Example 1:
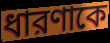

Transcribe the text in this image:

ধারণাকে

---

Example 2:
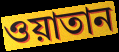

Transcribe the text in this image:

ওয়াতান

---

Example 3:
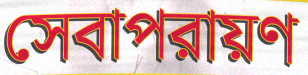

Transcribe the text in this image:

সেবাপরায়ণ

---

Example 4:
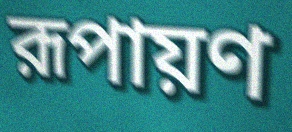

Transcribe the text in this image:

রূপায়ণ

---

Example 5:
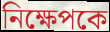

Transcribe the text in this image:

নিক্ষেপকে